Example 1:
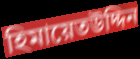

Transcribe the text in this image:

হিমায়েতউদ্দিন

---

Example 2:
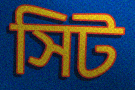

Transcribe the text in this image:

সিট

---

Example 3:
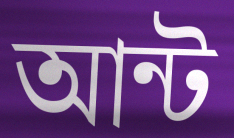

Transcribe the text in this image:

আন্ট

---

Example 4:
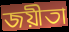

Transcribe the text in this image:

জয়ীতা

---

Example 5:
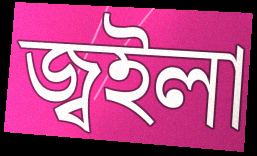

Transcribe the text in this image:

জ্বইলা